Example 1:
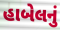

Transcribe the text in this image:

હાબેલનું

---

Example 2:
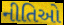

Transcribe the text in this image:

નીતિઓ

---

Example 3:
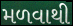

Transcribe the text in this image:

મળવાથી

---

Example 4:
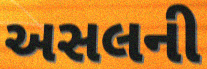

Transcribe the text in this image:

અસલની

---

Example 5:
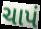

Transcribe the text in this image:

ચાપં